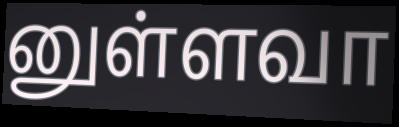
னுள்ளவா